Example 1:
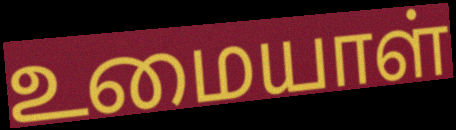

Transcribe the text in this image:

உமையாள்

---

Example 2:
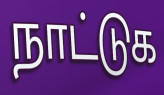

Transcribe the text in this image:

நாட்டுக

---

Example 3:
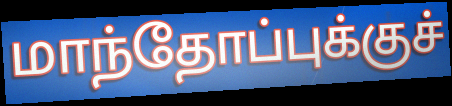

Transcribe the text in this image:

மாந்தோப்புக்குச்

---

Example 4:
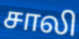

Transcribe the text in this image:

சாலி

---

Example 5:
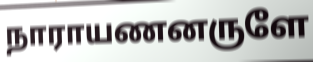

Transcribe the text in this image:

நாராயணனருளே